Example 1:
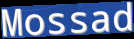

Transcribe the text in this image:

Mossad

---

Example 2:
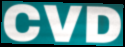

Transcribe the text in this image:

CVD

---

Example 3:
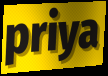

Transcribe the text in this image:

priya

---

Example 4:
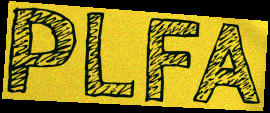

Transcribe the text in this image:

PLFA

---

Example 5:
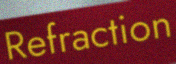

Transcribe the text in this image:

Refraction